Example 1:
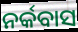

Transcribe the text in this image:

ନର୍କବାସ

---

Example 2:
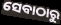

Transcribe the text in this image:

ସେବାଠାରୁ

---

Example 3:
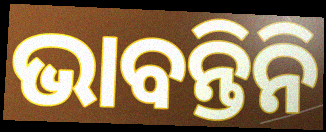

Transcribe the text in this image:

ଭାବନ୍ତିନି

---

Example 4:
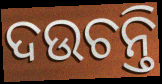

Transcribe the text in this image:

ଦଉଚନ୍ତି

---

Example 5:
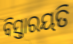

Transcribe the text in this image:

ବିସ୍ତାରୟତି